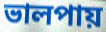
ভালপায়